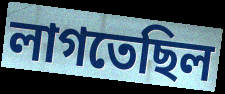
লাগতেছিল